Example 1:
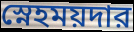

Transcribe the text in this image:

স্নেহময়দার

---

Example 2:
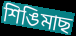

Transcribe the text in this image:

শিঙিমাছ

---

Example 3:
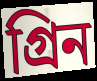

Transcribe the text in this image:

গ্রিন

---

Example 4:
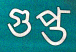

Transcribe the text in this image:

গুপ্ত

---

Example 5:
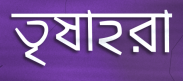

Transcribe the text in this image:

তৃষাহরা